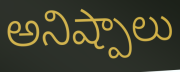
అనిష్పాలు